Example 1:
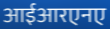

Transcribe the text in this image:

आईआरएनए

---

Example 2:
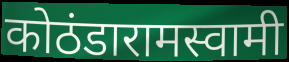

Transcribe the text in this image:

कोठंडारामस्वामी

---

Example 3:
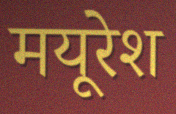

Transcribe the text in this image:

मयूरेश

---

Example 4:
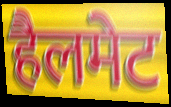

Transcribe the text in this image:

हैलमेट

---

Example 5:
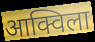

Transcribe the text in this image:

आक्विला